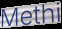
Methi